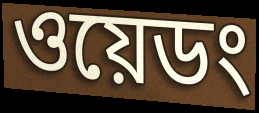
ওয়েডং